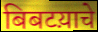
बिबटय़ाचे